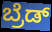
ಬ್ರೆಡ್